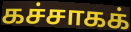
கச்சாகக்